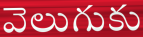
వెలుగుకు